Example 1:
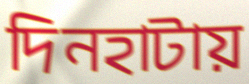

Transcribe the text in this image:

দিনহাটায়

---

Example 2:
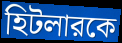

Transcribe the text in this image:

হিটলারকে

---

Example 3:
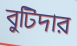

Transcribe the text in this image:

বুটিদার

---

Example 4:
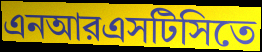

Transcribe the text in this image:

এনআরএসটিসিতে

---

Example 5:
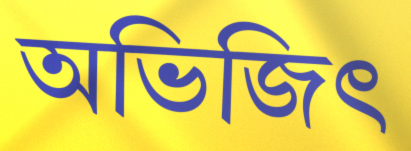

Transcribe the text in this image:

অভিজিৎ